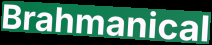
Brahmanical